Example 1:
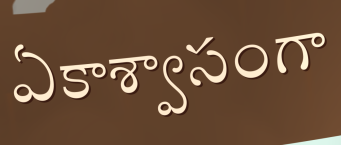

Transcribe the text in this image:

ఏకాశ్వాసంగా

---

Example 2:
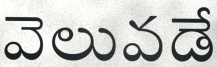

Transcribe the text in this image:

వెలువడే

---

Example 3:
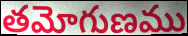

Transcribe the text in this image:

తమోగుణము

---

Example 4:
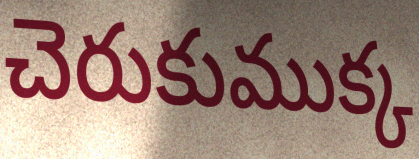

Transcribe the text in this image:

చెరుకుముక్క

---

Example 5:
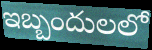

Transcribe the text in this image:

ఇబ్బందులలో